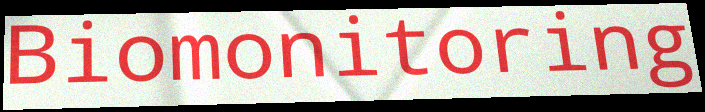
Biomonitoring